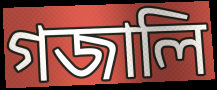
গজালি